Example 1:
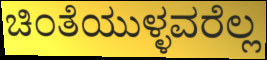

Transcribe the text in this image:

ಚಿಂತೆಯುಳ್ಳವರೆಲ್ಲ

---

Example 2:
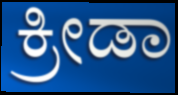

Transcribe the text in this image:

ಕ್ರೀಡಾ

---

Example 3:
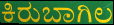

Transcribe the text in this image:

ಕಿರುಬಾಗಿಲ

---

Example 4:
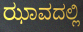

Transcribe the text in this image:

ಝಾವದಲ್ಲಿ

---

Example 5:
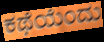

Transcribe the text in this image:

ಕಥೆಯೆಂದು